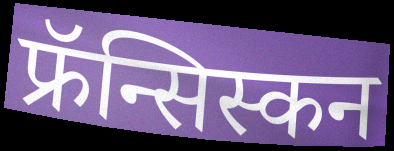
फ्रॅन्सिस्कन